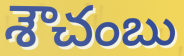
శౌచంబు